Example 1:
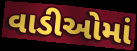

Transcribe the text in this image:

વાડીઓમાં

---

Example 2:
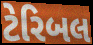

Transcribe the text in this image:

ટેરિબલ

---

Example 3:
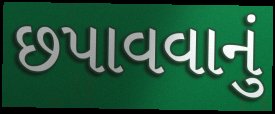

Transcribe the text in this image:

છપાવવાનું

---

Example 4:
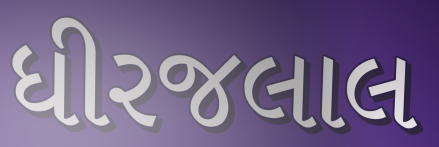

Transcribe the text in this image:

ધીરજલાલ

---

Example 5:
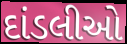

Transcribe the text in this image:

દાંડલીઓ